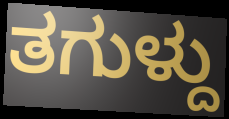
ತಗುಳ್ದು